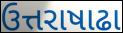
ઉત્તરાષાઢા